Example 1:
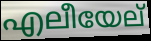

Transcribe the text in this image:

എലീയേല്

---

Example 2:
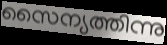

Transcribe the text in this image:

സൈന്യത്തിന്നു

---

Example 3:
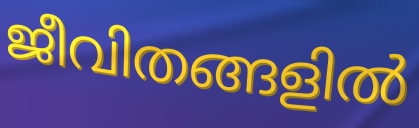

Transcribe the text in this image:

ജീവിതങ്ങളിൽ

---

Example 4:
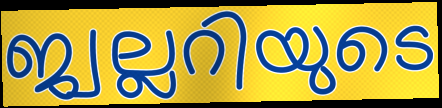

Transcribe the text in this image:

ജ്വല്ലറിയുടെ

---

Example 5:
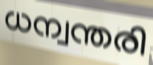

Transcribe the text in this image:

ധന്വന്തരി